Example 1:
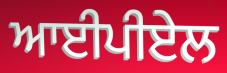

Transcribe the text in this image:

ਆਈਪੀਏਲ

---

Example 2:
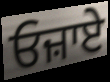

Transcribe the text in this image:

ਓਜ਼ਾਏ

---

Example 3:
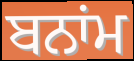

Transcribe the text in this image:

ਬਨਾਂਮ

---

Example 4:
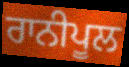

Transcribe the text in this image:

ਰਾਨੀਪੂਲ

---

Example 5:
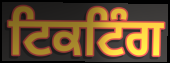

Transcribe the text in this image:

ਟਿਕਟਿੰਗ